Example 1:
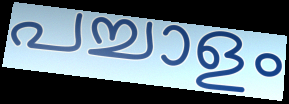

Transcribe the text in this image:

പച്ചാളം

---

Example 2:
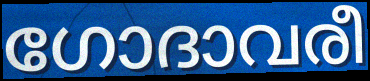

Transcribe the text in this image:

ഗോദാവരീ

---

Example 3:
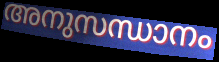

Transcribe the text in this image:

അനുസന്ധാനം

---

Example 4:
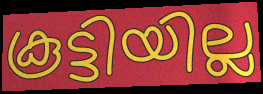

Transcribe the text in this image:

കൂട്ടിയില്ല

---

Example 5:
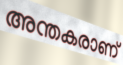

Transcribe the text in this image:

അന്തകരാണ്